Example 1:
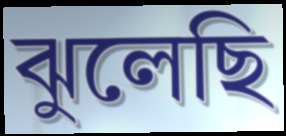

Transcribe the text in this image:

ঝুলেছি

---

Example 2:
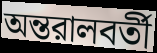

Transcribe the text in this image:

অন্তরালবর্তী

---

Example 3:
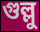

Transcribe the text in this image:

গুল্লু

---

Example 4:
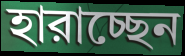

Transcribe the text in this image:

হারাচ্ছেন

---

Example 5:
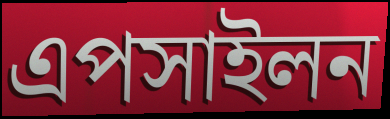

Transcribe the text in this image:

এপসাইলন